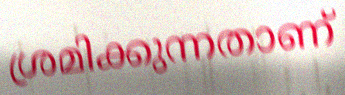
ശ്രമിക്കുന്നതാണ്